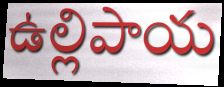
ఉల్లిపాయ